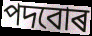
পদবোৰ